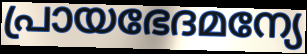
പ്രായഭേദമന്യേ